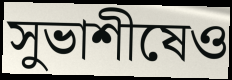
সুভাশীষেও